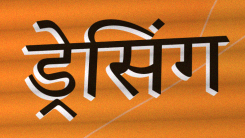
ड्रेसिंग